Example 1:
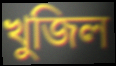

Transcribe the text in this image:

খুজিল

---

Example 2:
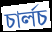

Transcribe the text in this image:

চাৰ্লচ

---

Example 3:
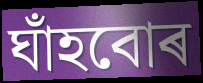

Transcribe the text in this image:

ঘাঁহবোৰ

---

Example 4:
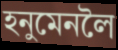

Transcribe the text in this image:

হনুমেনলৈ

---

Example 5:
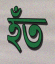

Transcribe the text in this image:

হঁত